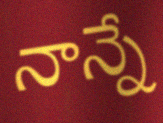
నాన్నే